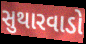
સુથારવાડો